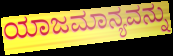
ಯಾಜಮಾನ್ಯವನ್ನು